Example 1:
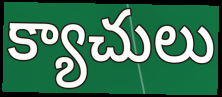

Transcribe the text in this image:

క్యాచులు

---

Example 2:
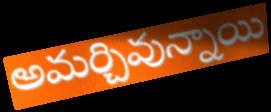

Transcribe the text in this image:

అమర్చివున్నాయి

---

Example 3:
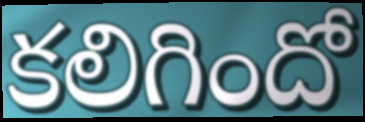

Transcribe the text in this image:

కలిగిందో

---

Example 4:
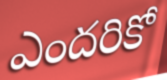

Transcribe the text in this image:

ఎందరికో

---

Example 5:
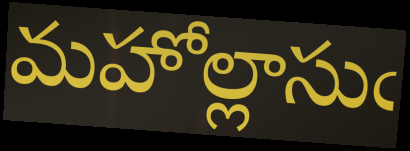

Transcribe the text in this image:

మహోల్లాసుఁ